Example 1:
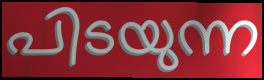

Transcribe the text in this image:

പിടയുന്ന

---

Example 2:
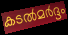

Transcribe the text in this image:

കടൽമർദ്ദം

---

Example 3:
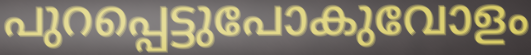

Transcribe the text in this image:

പുറപ്പെട്ടുപോകുവോളം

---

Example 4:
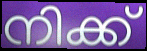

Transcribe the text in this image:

നിക്ക്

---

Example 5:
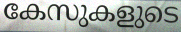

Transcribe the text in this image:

കേസുകളുടെ